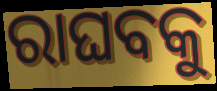
ରାଘବକୁ